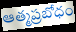
ఆత్మప్రబోధం